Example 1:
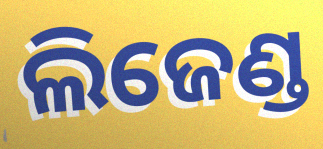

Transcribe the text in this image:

ଲିଜେଣ୍ଡ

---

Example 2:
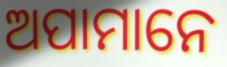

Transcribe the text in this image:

ଅପାମାନେ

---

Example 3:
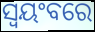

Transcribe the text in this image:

ସ୍ଵୟଂବରେ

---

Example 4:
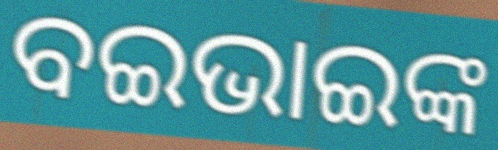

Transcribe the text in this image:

ବଇଭାଇଙ୍କ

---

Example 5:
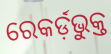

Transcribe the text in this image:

ରେକର୍ଡ଼ଭୁକ୍ତ